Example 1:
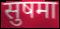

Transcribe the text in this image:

सुषमा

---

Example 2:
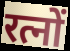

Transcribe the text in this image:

रत्नों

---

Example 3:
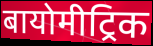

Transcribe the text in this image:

बायोमीट्रिक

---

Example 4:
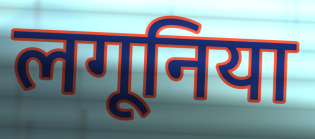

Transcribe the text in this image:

लगूनिया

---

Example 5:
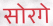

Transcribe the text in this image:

सोरगे